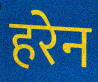
हरेन